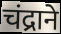
चंद्राने